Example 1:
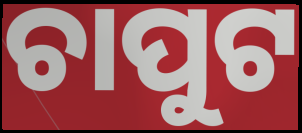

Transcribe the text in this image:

ଚାପୁଟ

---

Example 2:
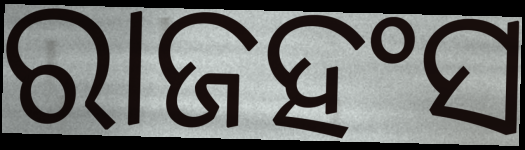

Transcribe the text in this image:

ରାଜହଂସ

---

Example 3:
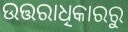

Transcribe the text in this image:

ଉତ୍ତରାଧିକାରରୁ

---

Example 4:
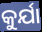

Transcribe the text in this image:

କୁର୍ଯା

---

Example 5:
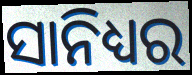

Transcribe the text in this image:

ସାନିଧ୍ୟର